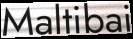
Maltibai